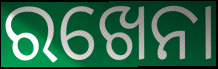
ରଖେନା